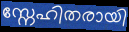
സ്നേഹിതരായി